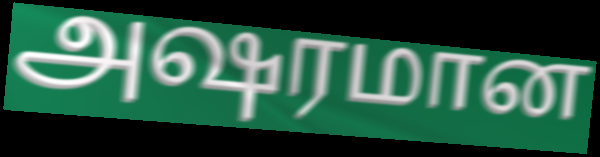
அஷரமான